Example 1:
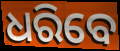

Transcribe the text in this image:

ଧରିବେ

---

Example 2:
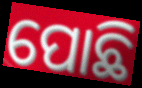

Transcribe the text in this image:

ପୋଛି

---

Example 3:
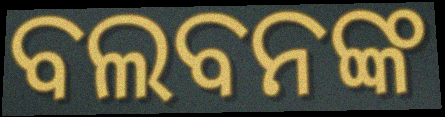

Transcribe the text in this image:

ବଲବନଙ୍କ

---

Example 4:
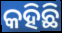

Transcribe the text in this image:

କହିଛି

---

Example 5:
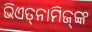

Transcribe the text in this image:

ଭିଏତ୍‌ନାମିଜ୍‌ଙ୍କ